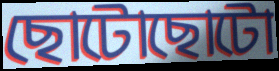
ছোটোছোটো